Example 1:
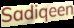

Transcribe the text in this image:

Sadiqeen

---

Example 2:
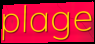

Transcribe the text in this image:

plage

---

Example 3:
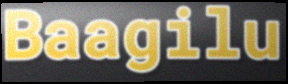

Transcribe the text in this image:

Baagilu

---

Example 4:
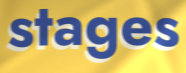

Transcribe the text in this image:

stages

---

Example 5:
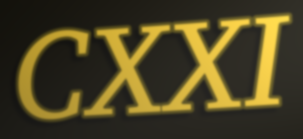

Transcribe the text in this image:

CXXI